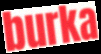
burka